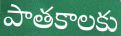
పాతకాలకు